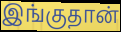
இங்குதான்